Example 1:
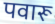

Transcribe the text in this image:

पवारू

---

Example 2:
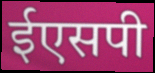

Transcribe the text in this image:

ईएसपी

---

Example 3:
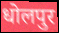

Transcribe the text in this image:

धोलपुर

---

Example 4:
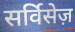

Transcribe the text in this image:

सर्विसेज़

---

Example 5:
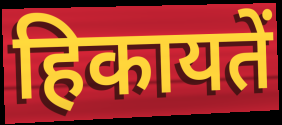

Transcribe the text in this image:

हिकायतें